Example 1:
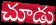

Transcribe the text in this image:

చూడు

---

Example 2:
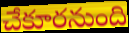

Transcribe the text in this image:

చేకూరనుంది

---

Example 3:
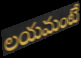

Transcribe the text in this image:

లయమంటే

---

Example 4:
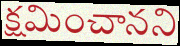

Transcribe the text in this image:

క్షమించానని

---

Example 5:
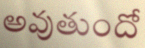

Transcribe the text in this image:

అవుతుందో